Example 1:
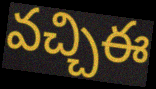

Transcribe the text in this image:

వచ్చిఈ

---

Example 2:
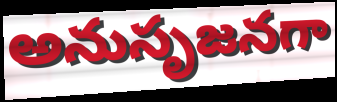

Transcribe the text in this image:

అనుసృజనగా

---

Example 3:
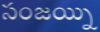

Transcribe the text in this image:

సంజయ్ని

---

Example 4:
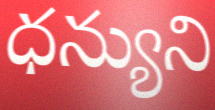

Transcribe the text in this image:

ధన్యుని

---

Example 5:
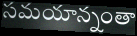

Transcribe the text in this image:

సమయాన్నంతా